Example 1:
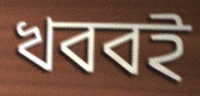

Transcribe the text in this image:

খববই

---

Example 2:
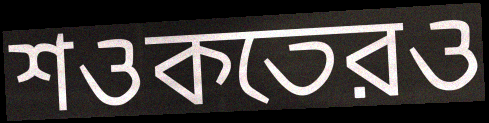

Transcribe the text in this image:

শওকতেরও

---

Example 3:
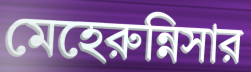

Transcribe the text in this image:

মেহেরুন্নিসার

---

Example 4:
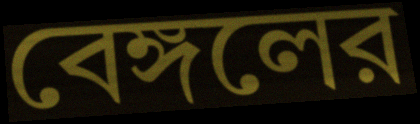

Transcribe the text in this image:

বেঙ্গলের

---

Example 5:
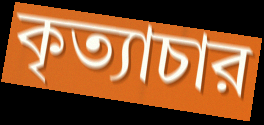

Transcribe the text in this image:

কৃত্যাচার